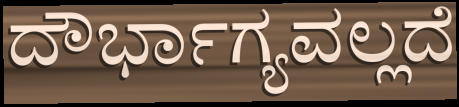
ದೌರ್ಭಾಗ್ಯವಲ್ಲದೆ